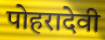
पोहरादेवी